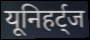
यूनिहर्ट्ज